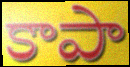
కాపా